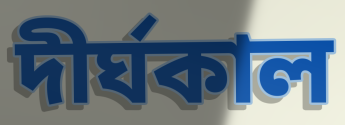
দীর্ঘকাল